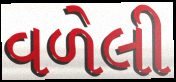
વળેલી